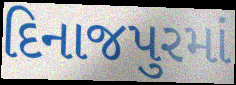
દિનાજપુરમાં